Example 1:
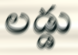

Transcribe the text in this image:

లడ్డు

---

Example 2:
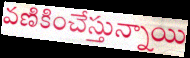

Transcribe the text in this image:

వణికించేస్తున్నాయి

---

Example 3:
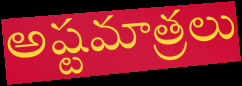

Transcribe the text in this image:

అష్టమాత్రలు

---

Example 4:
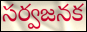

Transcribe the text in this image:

సర్వజనక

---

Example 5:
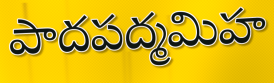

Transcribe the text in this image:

పాదపద్మమిహ